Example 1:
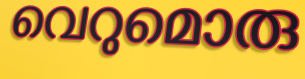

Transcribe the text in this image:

വെറുമൊരു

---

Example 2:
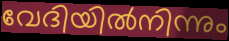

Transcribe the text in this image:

വേദിയിൽനിന്നും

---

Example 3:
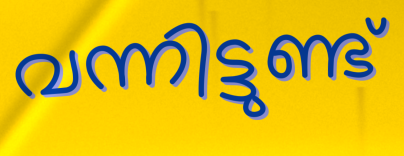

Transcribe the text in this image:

വന്നിട്ടുണ്ട്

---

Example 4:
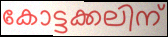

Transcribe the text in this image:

കോട്ടക്കലിന്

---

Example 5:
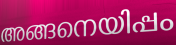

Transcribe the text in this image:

അങ്ങനെയിപ്പം